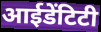
आईडेंटिटी